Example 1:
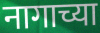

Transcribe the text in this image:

नागाच्या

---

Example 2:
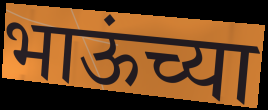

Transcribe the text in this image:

भाऊंच्या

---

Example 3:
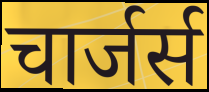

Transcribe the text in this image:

चार्जर्स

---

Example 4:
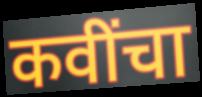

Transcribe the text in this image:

कवींचा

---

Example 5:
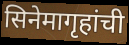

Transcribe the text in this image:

सिनेमागृहांची